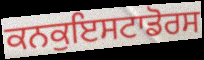
ਕਨਕੁਇਸਟਾਡੋਰਸ